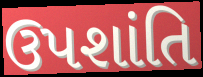
ઉપશાંતિ